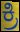
ಕ್ರಿ